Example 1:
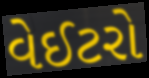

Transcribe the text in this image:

વેઈટરો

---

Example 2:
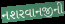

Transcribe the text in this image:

નશરવાનજીની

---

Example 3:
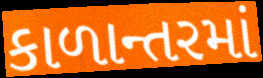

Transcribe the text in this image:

કાળાન્તરમાં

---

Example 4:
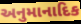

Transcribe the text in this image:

અનુમાનાદિક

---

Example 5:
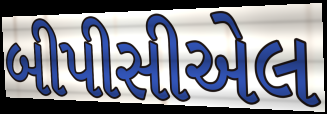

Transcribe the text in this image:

બીપીસીએલ